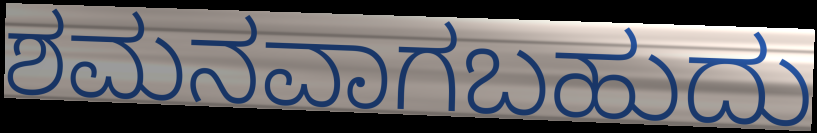
ಶಮನವಾಗಬಹುದು